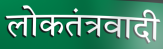
लोकतंत्रवादी